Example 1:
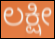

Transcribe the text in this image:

ಲಕ್ಷೀ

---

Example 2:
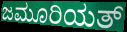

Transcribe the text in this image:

ಜಮೂರಿಯತ್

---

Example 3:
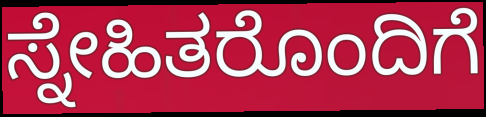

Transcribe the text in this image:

ಸ್ನೇಹಿತರೊಂದಿಗೆ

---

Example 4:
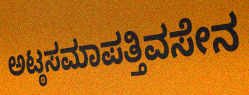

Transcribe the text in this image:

ಅಟ್ಠಸಮಾಪತ್ತಿವಸೇನ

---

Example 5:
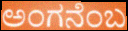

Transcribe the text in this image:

ಅಂಗನೆಂಬ